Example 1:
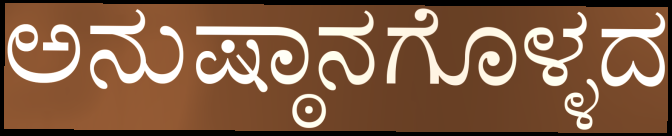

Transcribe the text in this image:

ಅನುಷ್ಠಾನಗೊಳ್ಳದ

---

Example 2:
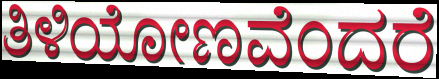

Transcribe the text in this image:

ತಿಳಿಯೋಣವೆಂದರೆ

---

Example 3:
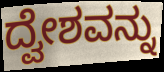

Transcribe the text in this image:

ದ್ವೇಶವನ್ನು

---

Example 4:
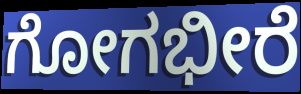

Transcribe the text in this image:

ಗೋಗಭೀರೆ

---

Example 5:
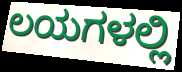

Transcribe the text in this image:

ಲಯಗಳಲ್ಲಿ